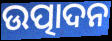
ଉତ୍ପାଦନ